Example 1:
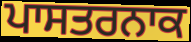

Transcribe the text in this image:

ਪਾਸਤਰਨਾਕ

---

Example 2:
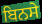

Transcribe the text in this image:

ਬਿਨਸੇ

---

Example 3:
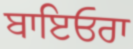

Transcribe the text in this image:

ਬਾਇਓਰਾ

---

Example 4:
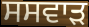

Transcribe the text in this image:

ਸਸਵਾੜ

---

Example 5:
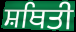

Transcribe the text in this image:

ਸ਼ਥਿਤੀ